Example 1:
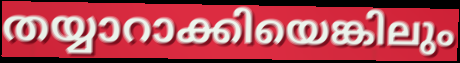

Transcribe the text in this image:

തയ്യാറാക്കിയെങ്കിലും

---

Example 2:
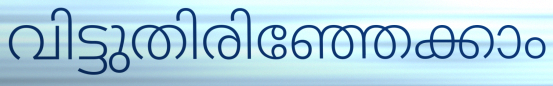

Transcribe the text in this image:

വിട്ടുതിരിഞ്ഞേക്കാം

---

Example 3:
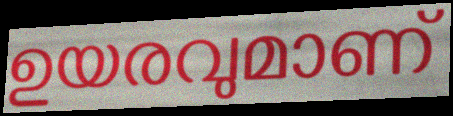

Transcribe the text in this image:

ഉയരവുമാണ്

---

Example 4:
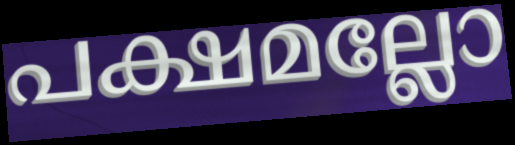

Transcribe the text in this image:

പക്ഷമല്ലോ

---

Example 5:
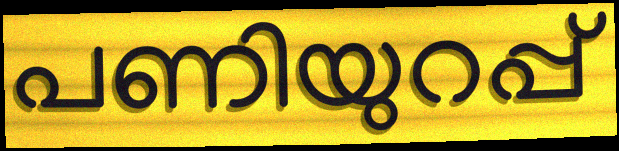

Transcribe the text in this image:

പണിയുറപ്പ്